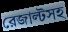
রেজাল্টসহ